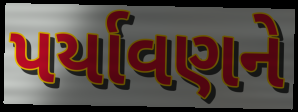
પર્યાવણને